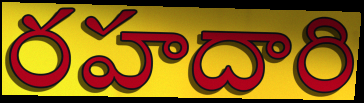
రహదారి